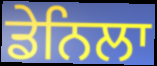
ਡੇਨਿਲਾ